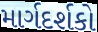
માર્ગદર્શકો